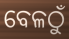
ବେଳଠୁଁ